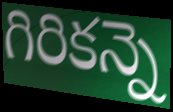
గిరికన్నె